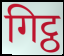
गिट्ठ